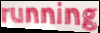
running